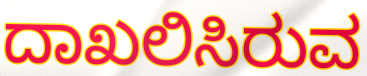
ದಾಖಲಿಸಿರುವ